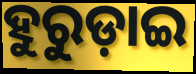
ହୁରୁଡ଼ାଇ